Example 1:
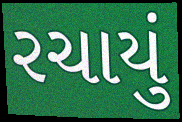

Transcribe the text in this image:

રચાયું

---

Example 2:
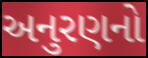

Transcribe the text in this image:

અનુરણનો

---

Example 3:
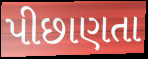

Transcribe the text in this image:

પીછાણતા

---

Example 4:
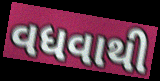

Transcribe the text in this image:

વધવાથી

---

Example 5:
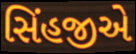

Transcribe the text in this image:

સિંહજીએ